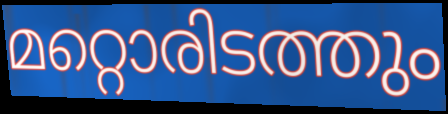
മറ്റൊരിടത്തും